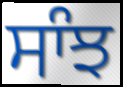
ਸਾੰਝ